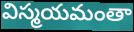
విస్మయమంతా